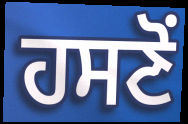
ਹਸਣੋਂ